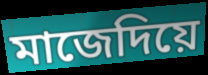
মাজেদিয়ে